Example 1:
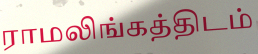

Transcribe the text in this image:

ராமலிங்கத்திடம்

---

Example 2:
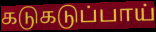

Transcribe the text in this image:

கடுகடுப்பாய்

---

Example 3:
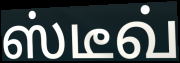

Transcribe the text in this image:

ஸ்டீவ்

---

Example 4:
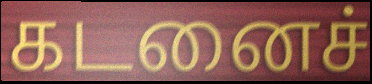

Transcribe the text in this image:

கடனைச்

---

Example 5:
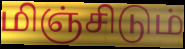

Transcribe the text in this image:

மிஞ்சிடும்